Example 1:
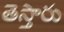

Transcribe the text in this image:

తెస్తారు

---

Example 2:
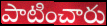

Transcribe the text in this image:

పాటించారు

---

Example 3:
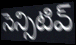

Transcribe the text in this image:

సెన్సిటివ్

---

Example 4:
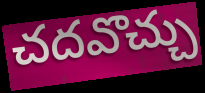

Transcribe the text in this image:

చదవొచ్చు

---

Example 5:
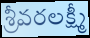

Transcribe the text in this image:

శ్రీవరలక్ష్మీ